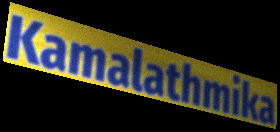
Kamalathmika